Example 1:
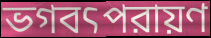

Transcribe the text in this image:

ভগবৎপরায়ণ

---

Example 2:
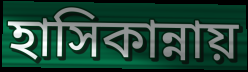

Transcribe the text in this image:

হাসিকান্নায়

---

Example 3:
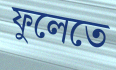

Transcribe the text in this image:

ফুলেতে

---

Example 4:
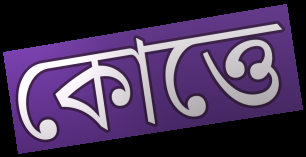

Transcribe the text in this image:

কোত্তে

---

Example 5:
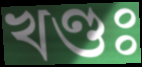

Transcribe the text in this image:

খণ্ডঃ